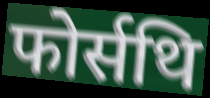
फोर्सथि